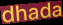
dhada